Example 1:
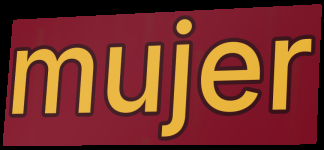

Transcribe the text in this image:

mujer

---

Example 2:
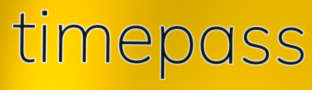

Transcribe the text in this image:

timepass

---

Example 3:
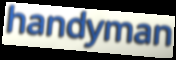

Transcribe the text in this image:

handyman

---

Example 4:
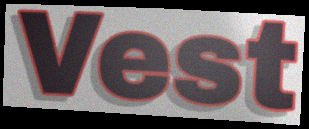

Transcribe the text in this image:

Vest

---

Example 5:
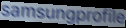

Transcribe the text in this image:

samsungprofile